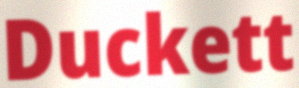
Duckett